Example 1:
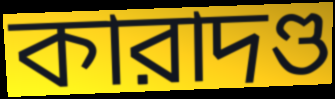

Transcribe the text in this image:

কারাদণ্ড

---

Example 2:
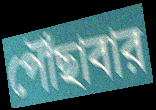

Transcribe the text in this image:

পৌঁছাবার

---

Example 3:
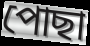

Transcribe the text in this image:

পোছা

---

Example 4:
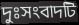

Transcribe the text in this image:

দুঃসংবাদটি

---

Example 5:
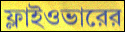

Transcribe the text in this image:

ফ্লাইওভারের